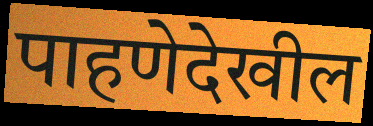
पाहणेदेखील